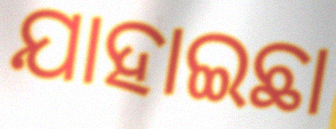
ଯାହାଇଛା